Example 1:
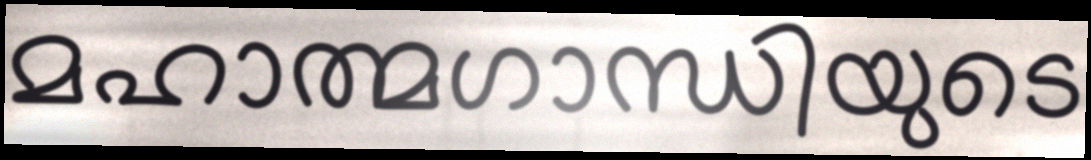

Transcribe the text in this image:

മഹാത്മഗാന്ധിയുടെ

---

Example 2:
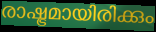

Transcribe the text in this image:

രാഷ്ട്രമായിരിക്കും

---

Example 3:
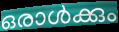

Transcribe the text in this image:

ഒരാൾക്കും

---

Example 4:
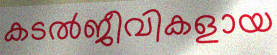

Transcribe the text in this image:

കടൽജീവികളായ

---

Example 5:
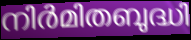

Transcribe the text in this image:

നിർമിതബുദ്ധി